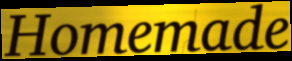
Homemade